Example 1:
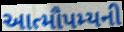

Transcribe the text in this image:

આત્મૌપમ્યની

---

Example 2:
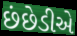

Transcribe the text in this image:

છંછેડીએ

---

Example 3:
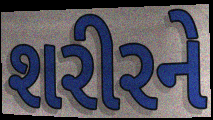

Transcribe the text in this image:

શરીરને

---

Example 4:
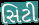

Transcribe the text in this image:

સિટી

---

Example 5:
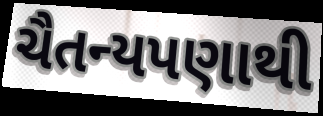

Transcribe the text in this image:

ચૈતન્યપણાથી